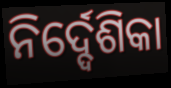
ନିର୍ଦ୍ଦେଶିକା